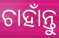
ଚାହାଁନ୍ତୁ